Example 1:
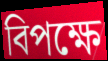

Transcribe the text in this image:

বিপক্ষে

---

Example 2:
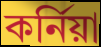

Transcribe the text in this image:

কৰ্নিয়া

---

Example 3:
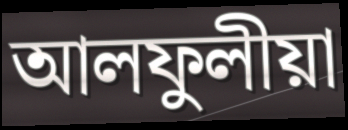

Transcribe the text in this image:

আলফুলীয়া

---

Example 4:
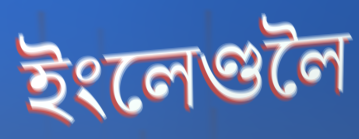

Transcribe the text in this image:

ইংলেণ্ডলৈ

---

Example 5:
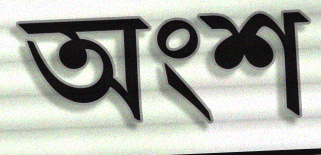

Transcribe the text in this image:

অংশ